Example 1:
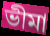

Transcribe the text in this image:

ভীমা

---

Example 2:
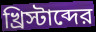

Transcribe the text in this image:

খ্রিস্টাব্দের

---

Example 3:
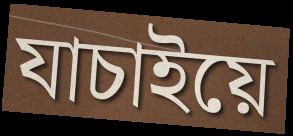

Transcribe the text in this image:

যাচাইয়ে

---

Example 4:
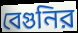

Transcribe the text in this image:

বেগুনির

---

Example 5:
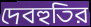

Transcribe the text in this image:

দেবহুতির